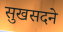
सुखसदने